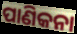
ପାଣିକନା